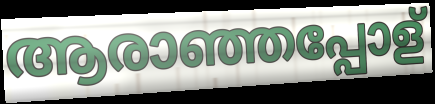
ആരാഞ്ഞപ്പോള്